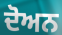
ਦੋਅਨ